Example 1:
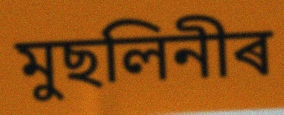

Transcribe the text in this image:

মুছলিনীৰ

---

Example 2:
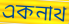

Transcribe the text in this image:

একনাথ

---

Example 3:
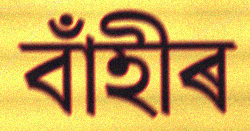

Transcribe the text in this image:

বাঁহীৰ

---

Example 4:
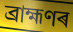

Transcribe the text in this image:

ব্ৰাহ্মণৰ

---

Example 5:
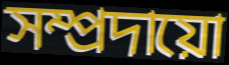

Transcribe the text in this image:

সম্প্ৰদায়ো